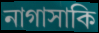
নাগাসাকি